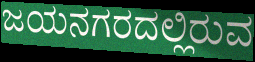
ಜಯನಗರದಲ್ಲಿರುವ